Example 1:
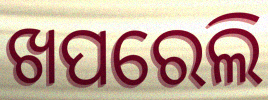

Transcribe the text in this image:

ଖପରେଲି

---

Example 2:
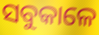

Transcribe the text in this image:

ସବୁକାଳେ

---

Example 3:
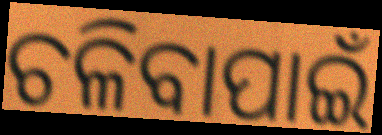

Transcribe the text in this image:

ଚଳିବାପାଇଁ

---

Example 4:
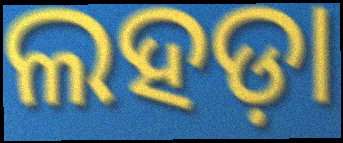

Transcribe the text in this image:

ଲହଡ଼ା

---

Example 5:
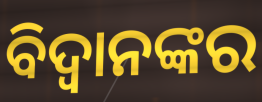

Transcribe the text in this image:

ବିଦ୍ୱାନଙ୍କର